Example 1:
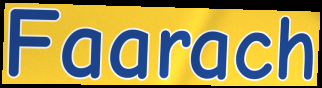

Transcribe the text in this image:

Faarach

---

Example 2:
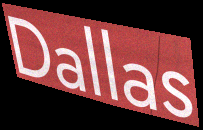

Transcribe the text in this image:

Dallas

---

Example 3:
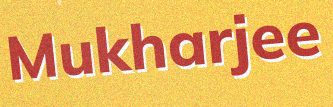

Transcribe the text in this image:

Mukharjee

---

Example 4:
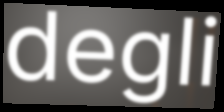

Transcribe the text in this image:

degli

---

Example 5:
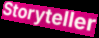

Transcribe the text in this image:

Storyteller